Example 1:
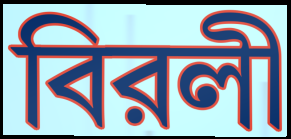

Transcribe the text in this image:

বিরলী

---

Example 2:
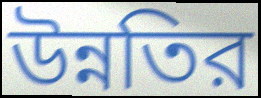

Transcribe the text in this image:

উন্নতির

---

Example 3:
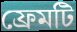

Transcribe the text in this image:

ফ্রেমটি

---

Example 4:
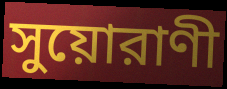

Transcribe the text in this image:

সুয়োরাণী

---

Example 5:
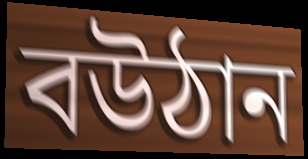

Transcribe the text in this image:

বউঠান